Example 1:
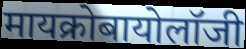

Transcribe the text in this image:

मायक्रोबायोलॉजी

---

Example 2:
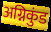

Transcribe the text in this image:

अग्निकुंड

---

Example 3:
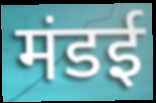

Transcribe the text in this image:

मंडई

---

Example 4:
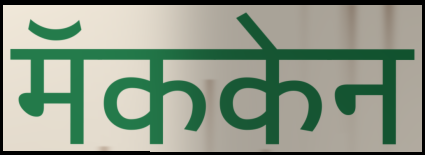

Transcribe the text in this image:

मॅककेन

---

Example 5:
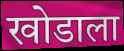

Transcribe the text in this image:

खोडाला